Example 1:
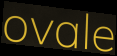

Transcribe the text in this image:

ovale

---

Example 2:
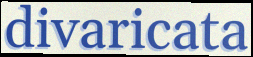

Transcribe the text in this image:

divaricata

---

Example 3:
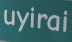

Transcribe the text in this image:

uyirai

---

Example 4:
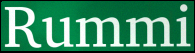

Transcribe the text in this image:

Rummi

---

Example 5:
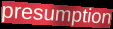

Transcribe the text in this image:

presumption